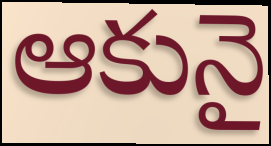
ఆకునై